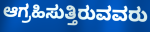
ಆಗ್ರಹಿಸುತ್ತಿರುವವರು